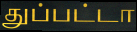
துப்பட்டா